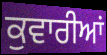
ਕੁਵਾਰੀਆਂ